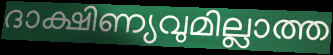
ദാക്ഷിണ്യവുമില്ലാത്ത